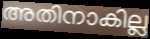
അതിനാകില്ല